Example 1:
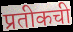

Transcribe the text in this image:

प्रतीकची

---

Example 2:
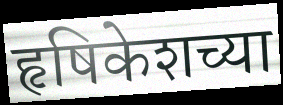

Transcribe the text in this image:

हृषिकेशच्या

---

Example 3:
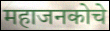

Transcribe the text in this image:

महाजनकोचे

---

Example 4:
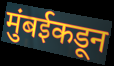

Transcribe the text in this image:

मुंबईकडून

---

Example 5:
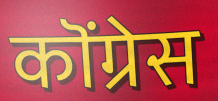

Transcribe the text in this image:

कॊंग्रेस